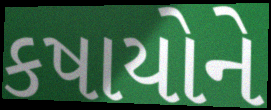
કષાયોને